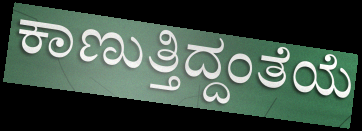
ಕಾಣುತ್ತಿದ್ದಂತೆಯೆ